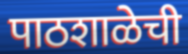
पाठशाळेची